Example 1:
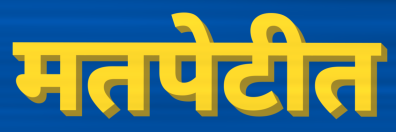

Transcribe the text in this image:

मतपेटीत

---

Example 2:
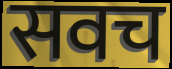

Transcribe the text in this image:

सवच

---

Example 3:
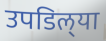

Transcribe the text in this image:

उपडिल्या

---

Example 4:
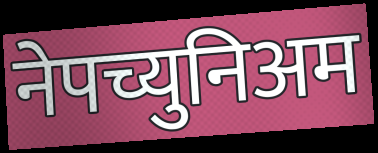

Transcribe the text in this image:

नेपच्युनिअम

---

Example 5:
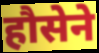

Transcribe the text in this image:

हौसेने